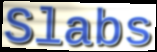
Slabs